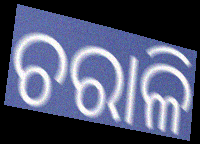
ଚରାଳି